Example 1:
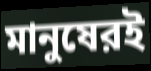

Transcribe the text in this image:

মানুষেরই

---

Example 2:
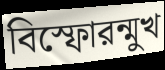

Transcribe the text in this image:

বিস্ফোরন্মুখ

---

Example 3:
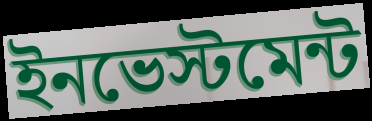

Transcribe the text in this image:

ইনভেস্টমেন্ট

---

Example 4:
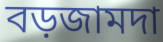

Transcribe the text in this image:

বড়জামদা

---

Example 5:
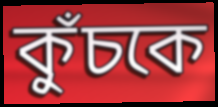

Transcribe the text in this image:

কুঁচকে